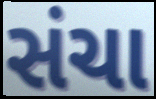
સંચા